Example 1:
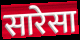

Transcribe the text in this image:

सारेसा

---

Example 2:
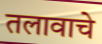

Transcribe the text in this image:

तलावाचे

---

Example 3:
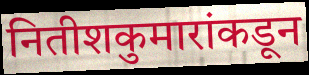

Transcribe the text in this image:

नितीशकुमारांकडून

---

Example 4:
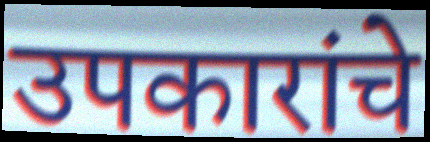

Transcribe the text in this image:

उपकारांचे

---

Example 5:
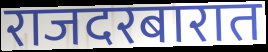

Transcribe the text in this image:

राजदरबारात